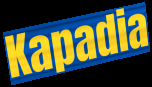
Kapadia